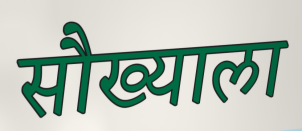
सौख्याला